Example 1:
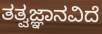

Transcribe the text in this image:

ತತ್ವಜ್ಞಾನವಿದೆ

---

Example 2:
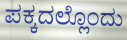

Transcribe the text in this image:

ಪಕ್ಕದಲ್ಲೊಂದು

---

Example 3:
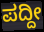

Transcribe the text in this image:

ಪದ್ದೀ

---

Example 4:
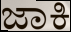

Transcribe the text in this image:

ಜಾಕಿ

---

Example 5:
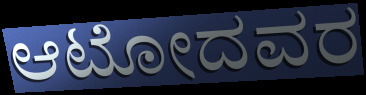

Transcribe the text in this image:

ಆಟೋದವರ